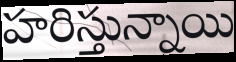
హరిస్తున్నాయి